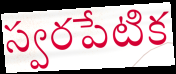
స్వరపేటిక